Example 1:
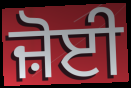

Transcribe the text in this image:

ਜ਼ੋਈ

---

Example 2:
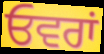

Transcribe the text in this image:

ਓਵਰਾਂ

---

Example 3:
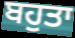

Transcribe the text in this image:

ਬਹੁਤਾ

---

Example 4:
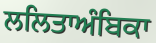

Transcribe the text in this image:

ਲਲਿਤਾਅੰਬਿਕਾ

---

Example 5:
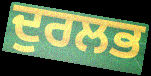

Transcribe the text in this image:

ਦੁਰਲਭ